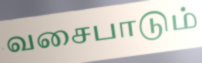
வசைபாடும்